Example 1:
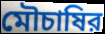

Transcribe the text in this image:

মৌচাষির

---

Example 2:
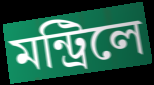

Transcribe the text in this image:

মন্ট্রিলে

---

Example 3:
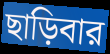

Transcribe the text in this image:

ছাড়িবার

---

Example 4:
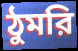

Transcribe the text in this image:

ঠুমরি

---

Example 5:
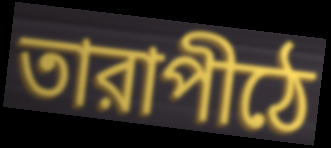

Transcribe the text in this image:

তারাপীঠে